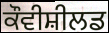
ਕੌਵੀਸ਼ੀਲਡ